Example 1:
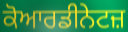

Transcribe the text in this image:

ਕੋਆਰਡੀਨੇਟਜ਼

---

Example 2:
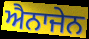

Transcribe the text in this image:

ਐਨਾਜੇਨ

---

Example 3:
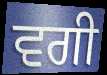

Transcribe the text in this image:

ਵਗੀ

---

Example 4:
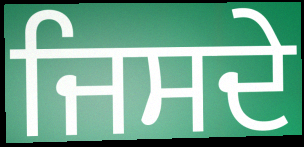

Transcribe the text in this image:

ਜਿਸਦੇ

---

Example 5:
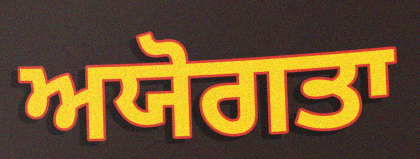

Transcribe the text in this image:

ਅਯੋਗਤਾ